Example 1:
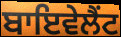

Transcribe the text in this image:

ਬਾਇਵੇਲੈਂਟ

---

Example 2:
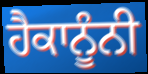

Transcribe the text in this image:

ਹੈਕਾਨੂੰਨੀ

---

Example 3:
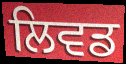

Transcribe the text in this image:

ਲਿਵਡ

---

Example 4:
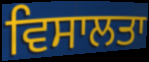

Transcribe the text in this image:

ਵਿਸਾਲਤਾ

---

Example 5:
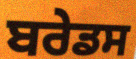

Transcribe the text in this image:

ਬਰੇਡਸ